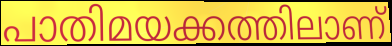
പാതിമയക്കത്തിലാണ്